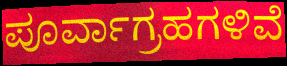
ಪೂರ್ವಾಗ್ರಹಗಳಿವೆ